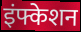
इंफ्केशन